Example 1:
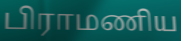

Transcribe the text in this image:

பிராமணிய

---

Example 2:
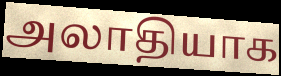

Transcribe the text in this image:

அலாதியாக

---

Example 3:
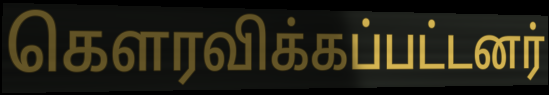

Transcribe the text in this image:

கௌரவிக்கப்பட்டனர்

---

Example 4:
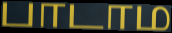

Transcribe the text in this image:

பாடாம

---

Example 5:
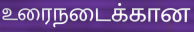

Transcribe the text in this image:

உரைநடைக்கான